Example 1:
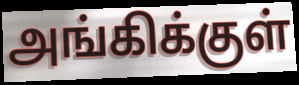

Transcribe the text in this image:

அங்கிக்குள்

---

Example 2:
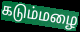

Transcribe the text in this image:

கடும்மழை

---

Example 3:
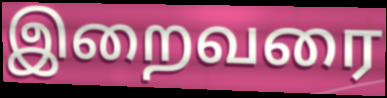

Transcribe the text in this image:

இறைவரை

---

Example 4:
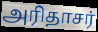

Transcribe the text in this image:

அரிதாசர்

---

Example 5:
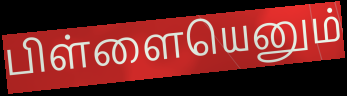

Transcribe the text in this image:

பிள்ளையெனும்